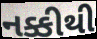
નક્કીથી